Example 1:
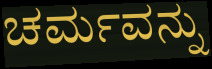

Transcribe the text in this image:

ಚರ್ಮವನ್ನು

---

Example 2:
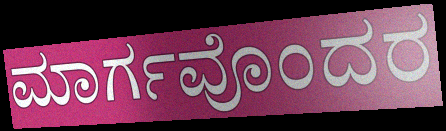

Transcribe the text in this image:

ಮಾರ್ಗವೊಂದರ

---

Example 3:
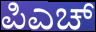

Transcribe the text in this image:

ಪಿಎಚ್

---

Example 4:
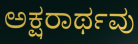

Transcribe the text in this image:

ಅಕ್ಷರಾರ್ಥವು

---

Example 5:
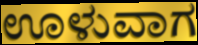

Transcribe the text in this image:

ಊಳುವಾಗ